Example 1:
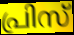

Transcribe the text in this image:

പ്രിസ്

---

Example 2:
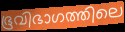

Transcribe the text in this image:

ഭൂവിഭാഗത്തിലെ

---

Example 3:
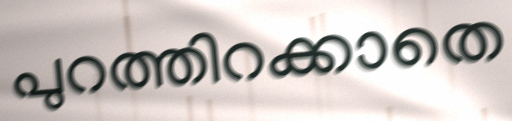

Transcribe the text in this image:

പുറത്തിറക്കാതെ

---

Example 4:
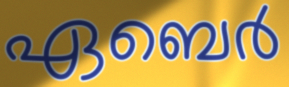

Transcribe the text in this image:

ഏബെർ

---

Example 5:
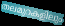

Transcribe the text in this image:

തലമുറകളിലും